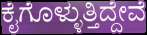
ಕೈಗೊಳ್ಳುತ್ತಿದ್ದೇವೆ